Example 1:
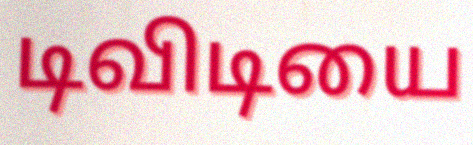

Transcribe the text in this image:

டிவிடியை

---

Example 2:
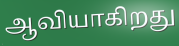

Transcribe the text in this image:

ஆவியாகிறது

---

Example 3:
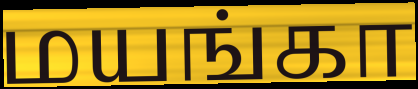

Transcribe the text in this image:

மயங்கா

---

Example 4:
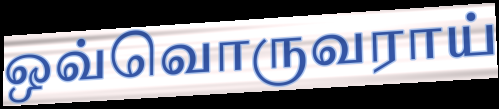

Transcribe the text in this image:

ஒவ்வொருவராய்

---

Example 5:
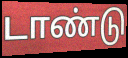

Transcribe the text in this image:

டாண்டு